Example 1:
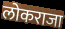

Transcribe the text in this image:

लोकराजा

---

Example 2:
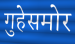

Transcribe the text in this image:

गुहेसमोर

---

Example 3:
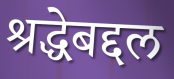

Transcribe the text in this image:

श्रद्धेबद्दल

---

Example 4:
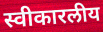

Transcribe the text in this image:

स्वीकारलीय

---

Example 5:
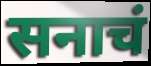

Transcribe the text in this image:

सनाचं